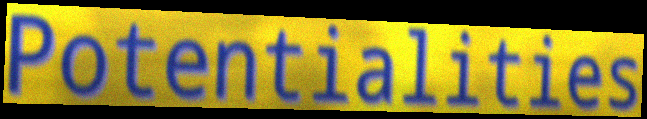
Potentialities